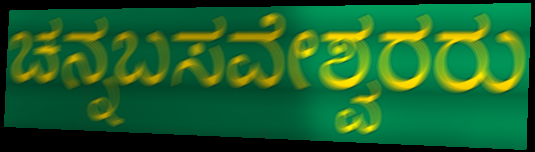
ಚನ್ನಬಸವೇಶ್ವರರು